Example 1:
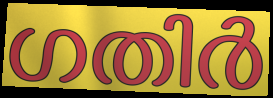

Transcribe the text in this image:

ഗതിർ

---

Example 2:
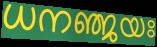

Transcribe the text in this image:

ധനഞ്ജയഃ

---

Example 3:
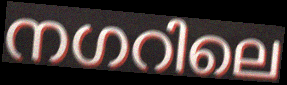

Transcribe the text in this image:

നഗറിലെ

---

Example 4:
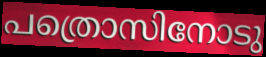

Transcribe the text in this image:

പത്രൊസിനോടു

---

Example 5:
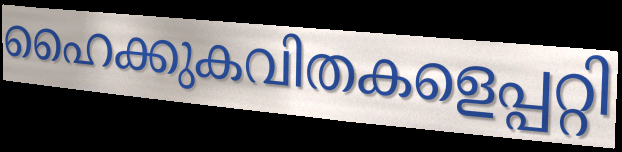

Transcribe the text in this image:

ഹൈക്കുകവിതകളെപ്പറ്റി